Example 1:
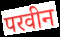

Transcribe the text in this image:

परवीन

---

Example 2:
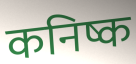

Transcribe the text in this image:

कनिष्क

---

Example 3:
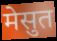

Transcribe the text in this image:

मेसुत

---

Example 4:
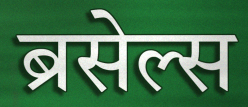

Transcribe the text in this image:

ब्रसेल्स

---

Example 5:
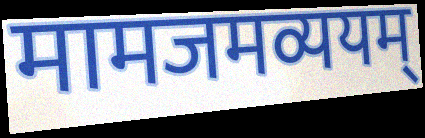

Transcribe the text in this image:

मामजमव्ययम्